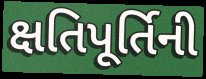
ક્ષતિપૂર્તિની